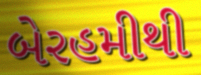
બેરહમીથી